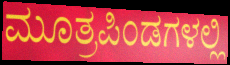
ಮೂತ್ರಪಿಂಡಗಳಲ್ಲಿ